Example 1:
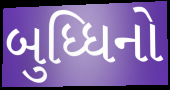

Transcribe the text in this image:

બુધ્ધિનો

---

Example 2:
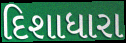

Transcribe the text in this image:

દિશાધારા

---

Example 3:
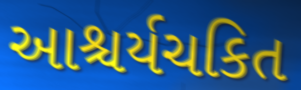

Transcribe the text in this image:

આશ્ચર્યચકિત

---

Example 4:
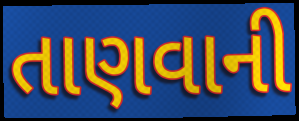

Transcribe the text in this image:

તાણવાની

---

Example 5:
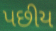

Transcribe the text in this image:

પછીય